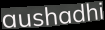
aushadhi